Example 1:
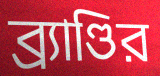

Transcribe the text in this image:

ব্র্যাণ্ডির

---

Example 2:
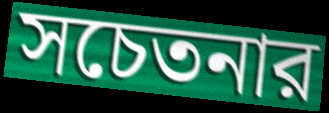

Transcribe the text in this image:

সচেতনার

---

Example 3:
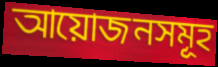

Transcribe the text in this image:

আয়োজনসমূহ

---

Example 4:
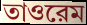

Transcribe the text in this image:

তাওরেম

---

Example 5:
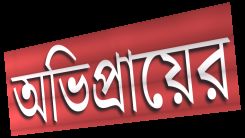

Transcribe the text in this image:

অভিপ্রায়ের